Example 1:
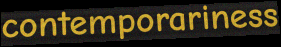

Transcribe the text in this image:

contemporariness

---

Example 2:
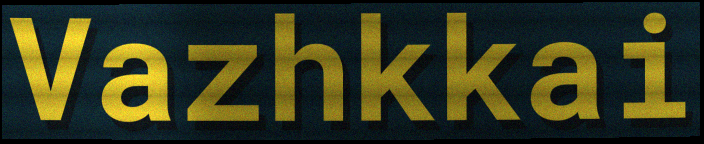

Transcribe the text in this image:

Vazhkkai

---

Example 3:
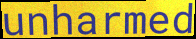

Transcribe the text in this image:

unharmed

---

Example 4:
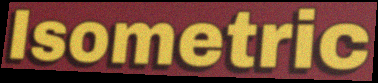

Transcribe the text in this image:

Isometric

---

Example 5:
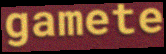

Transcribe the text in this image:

gamete